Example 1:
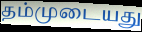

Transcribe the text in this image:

தம்முடையது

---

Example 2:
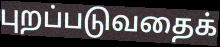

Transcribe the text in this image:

புறப்படுவதைக்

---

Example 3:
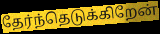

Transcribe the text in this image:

தேர்ந்தெடுக்கிறேன்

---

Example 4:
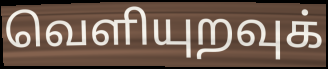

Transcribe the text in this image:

வெளியுறவுக்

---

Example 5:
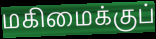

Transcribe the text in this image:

மகிமைக்குப்